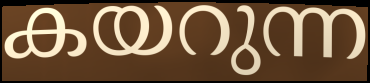
കയറുന്ന